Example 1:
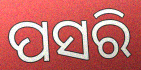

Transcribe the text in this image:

ପସରି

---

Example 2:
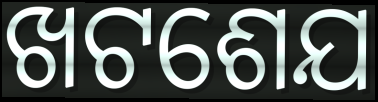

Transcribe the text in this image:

ଖଟଶେଯ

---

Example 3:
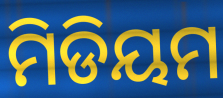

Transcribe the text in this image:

ମିଡିୟମ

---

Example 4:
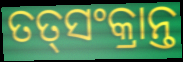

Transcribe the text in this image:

ତତ୍‌ସଂକ୍ରାନ୍ତ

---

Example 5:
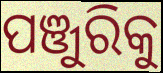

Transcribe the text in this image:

ପଞ୍ଜୁରିକୁ